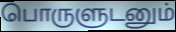
பொருளுடனும்